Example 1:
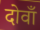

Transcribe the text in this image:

दोवाँ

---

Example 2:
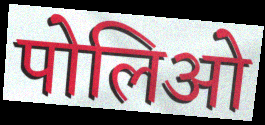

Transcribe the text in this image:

पोलिओ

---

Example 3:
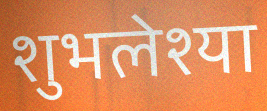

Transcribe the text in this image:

शुभलेश्या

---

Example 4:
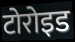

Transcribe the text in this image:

टोरोइड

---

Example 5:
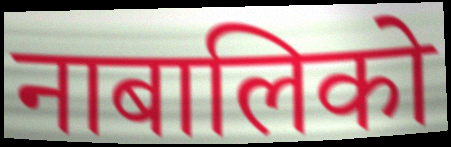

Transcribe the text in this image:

नाबालिको